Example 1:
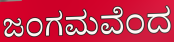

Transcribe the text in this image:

ಜಂಗಮವೆಂದ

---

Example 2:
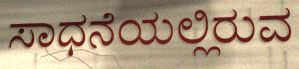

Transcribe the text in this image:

ಸಾಧನೆಯಲ್ಲಿರುವ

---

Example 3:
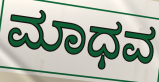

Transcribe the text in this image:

ಮಾಧವ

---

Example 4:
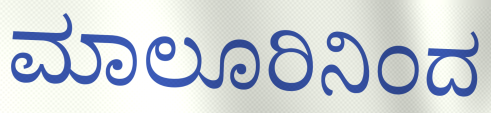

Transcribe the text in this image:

ಮಾಲೂರಿನಿಂದ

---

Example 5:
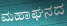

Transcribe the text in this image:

ಮಹಾಘನದ